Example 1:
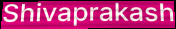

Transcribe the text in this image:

Shivaprakash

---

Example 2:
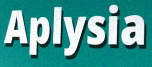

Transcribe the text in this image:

Aplysia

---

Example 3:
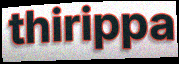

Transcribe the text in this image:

thirippa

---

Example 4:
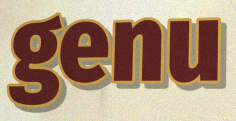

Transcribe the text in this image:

genu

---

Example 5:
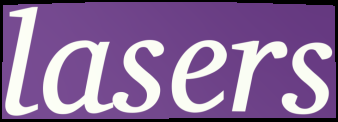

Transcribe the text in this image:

lasers